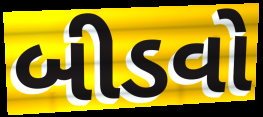
બીડવો